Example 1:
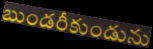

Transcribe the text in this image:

బుండరీకుండును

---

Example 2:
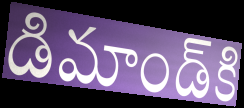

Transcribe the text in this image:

డిమాండ్‌కి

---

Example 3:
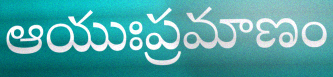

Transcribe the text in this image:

ఆయుఃప్రమాణం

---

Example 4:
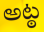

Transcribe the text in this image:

అట్ఠ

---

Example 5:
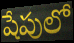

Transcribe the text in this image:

షేపులో